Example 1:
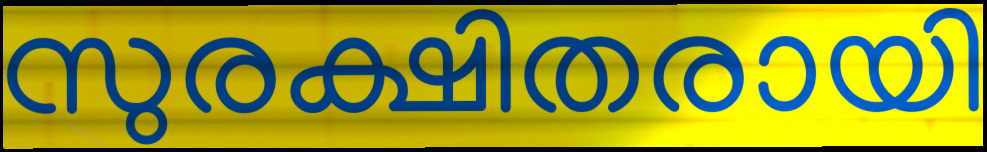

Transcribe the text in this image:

സുരക്ഷിതരായി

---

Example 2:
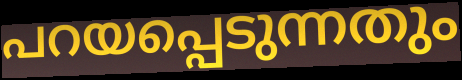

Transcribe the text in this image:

പറയപ്പെടുന്നതും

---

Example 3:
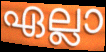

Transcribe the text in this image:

ഏല്ലാ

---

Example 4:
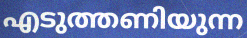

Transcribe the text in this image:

എടുത്തണിയുന്ന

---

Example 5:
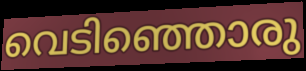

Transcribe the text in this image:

വെടിഞ്ഞൊരു